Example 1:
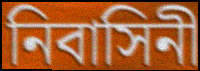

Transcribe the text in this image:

নিবাসিনী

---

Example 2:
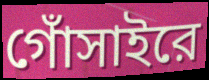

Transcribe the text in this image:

গোঁসাইরে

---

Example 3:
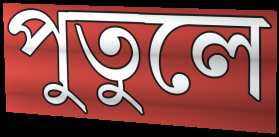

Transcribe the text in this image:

পুতুলে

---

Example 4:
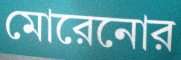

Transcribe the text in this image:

মোরেনোর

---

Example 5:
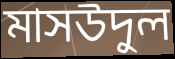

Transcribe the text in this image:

মাসউদুল